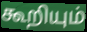
கூறியும்